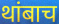
थांबाच